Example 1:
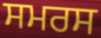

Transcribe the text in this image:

ਸਮਰਸ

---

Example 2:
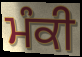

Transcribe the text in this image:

ਮੰਕੀ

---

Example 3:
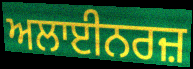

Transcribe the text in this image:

ਅਲਾਈਨਰਜ਼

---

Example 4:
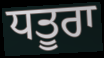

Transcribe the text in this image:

ਧਤੂਰਾ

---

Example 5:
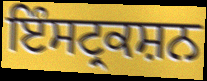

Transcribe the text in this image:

ਇੰਸਟ੍ਰਕਸ਼ਨ